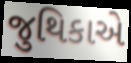
જુથિકાએ